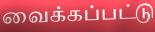
வைக்கப்பட்டு